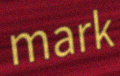
mark